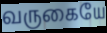
வருகையே